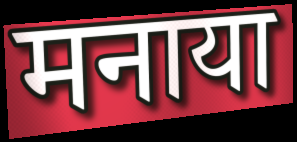
मनाया